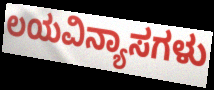
ಲಯವಿನ್ಯಾಸಗಳು